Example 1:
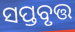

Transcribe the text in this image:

ସପ୍ତବୃତ୍ତ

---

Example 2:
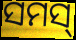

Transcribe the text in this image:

ସମସ୍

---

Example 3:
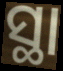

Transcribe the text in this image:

ସ୍ଥା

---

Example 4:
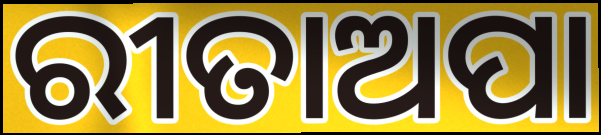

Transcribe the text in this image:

ରୀତାଅପା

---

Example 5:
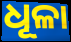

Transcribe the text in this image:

ଧୂଳା